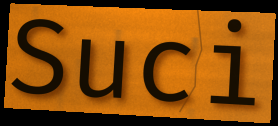
Suci